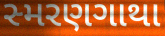
સ્મરણગાથા